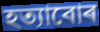
হত্যাবোৰ